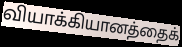
வியாக்கியானத்தைக்